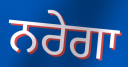
ਨਰੇਗਾ